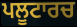
ਪਲੂਟਾਰਚ